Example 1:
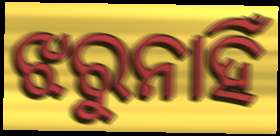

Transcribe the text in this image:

ଝରୁନାହିଁ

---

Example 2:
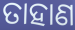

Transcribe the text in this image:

ତାହାଣ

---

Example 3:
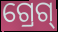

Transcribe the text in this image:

ଗ୍ରେଗ୍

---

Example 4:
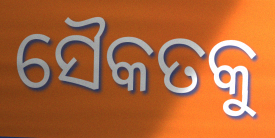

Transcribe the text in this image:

ସୈକତକୁ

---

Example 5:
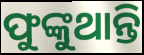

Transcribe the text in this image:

ଫୁଙ୍କୁଥାନ୍ତି